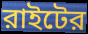
রাইটের